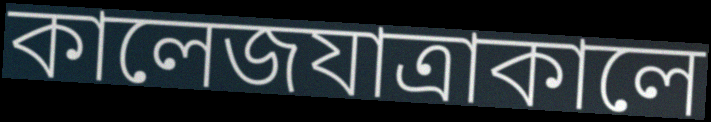
কালেজযাত্রাকালে